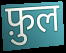
फ़ुल